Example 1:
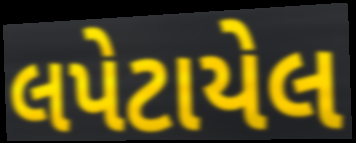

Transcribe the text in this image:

લપેટાયેલ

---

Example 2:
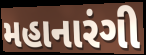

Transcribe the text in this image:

મહાનારંગી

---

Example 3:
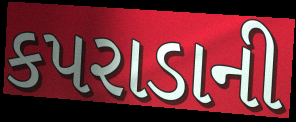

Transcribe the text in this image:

કપરાડાની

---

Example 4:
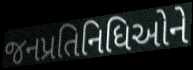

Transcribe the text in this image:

જનપ્રતિનિધિઓને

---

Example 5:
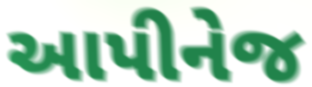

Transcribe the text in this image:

આપીનેજ